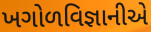
ખગોળવિજ્ઞાનીએ